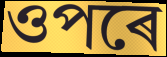
ওপৰে